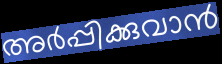
അർപ്പിക്കുവാൻ